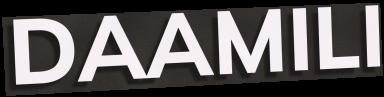
DAAMILI